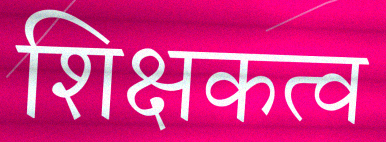
शिक्षकत्व